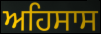
ਅਹਿਸਾਸ